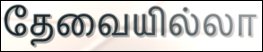
தேவையில்லா